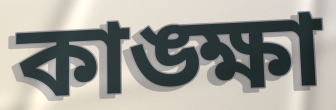
কাঙ্ক্ষা